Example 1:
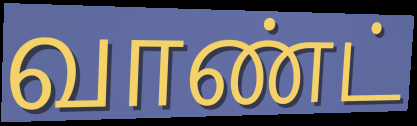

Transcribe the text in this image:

வாண்ட்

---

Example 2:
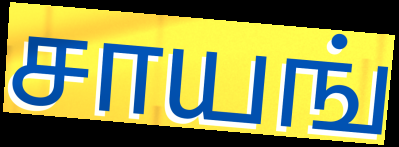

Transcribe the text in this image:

சாயங்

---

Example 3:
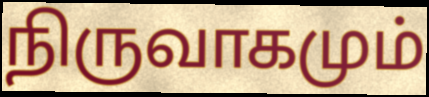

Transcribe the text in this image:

நிருவாகமும்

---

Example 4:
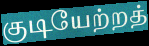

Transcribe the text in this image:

குடியேற்றத்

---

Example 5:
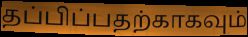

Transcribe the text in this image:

தப்பிப்பதற்காகவும்